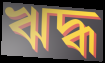
ঋদ্ধ